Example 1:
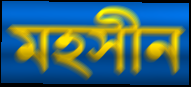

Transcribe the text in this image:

মহসীন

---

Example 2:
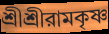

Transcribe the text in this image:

শ্রীশ্রীরামকৃষ্ণ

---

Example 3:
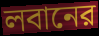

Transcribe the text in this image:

লবানের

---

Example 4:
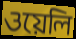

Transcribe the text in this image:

ওয়েলি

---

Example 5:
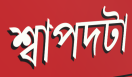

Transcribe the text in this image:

শ্বাপদটা